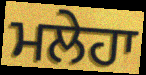
ਮਲੇਹਾ